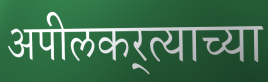
अपीलकर्त्याच्या